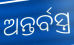
ଅନ୍ତର୍ବସ୍ତ୍ର